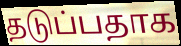
தடுப்பதாக